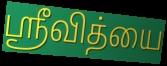
ஸ்ரீவித்யை